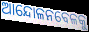
ଆନ୍ଦୋଳନବେଳକୁ